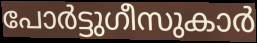
പോർട്ടുഗീസുകാർ